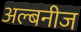
अल्‍बनीज